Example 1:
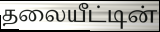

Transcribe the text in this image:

தலையீட்டின்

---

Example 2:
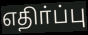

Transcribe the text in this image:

எதிர்ப்பு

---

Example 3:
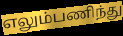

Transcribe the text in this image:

எலும்பணிந்து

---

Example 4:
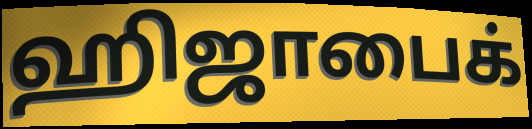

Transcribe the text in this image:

ஹிஜாபைக்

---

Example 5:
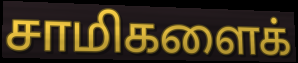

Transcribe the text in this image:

சாமிகளைக்